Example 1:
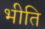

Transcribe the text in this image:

भीति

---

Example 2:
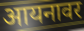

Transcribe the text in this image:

आयनावर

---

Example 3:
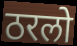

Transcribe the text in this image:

ठरलो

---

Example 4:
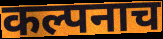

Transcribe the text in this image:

कल्पनाच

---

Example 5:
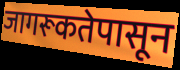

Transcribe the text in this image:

जागरूकतेपासून